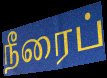
நீரைப்